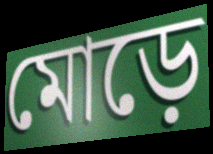
মোড়ে